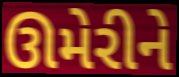
ઊમેરીને